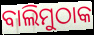
ବାଲିମୁଠାକ